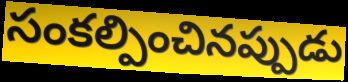
సంకల్పించినప్పుడు